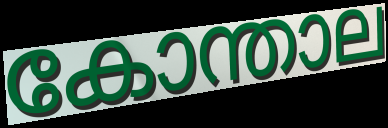
കോന്താല